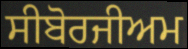
ਸੀਬੋਰਜੀਅਮ